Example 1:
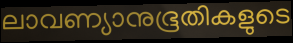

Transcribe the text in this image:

ലാവണ്യാനുഭൂതികളുടെ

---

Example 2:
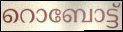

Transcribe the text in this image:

റൊബോട്ട്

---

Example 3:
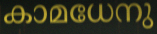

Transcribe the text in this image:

കാമധേനു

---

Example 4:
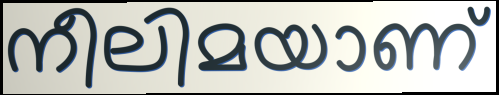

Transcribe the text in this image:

നീലിമയാണ്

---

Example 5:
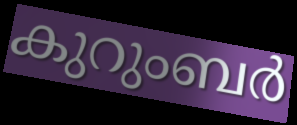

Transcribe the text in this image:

കുറുംബർ